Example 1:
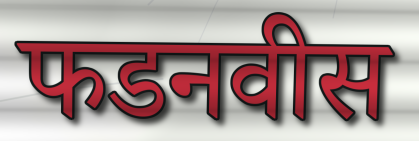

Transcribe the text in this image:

फडनवीस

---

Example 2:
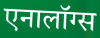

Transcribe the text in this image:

एनालॉग्स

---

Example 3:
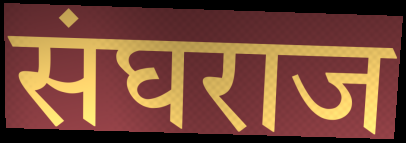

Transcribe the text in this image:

संघराज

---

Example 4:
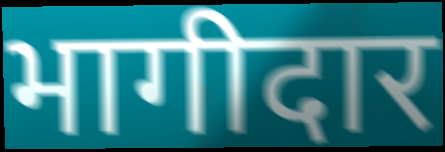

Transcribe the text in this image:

भागीदार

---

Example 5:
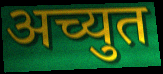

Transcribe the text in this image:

अच्‍युत